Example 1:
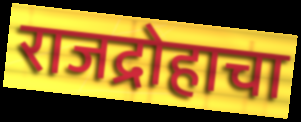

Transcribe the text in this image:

राजद्रोहाचा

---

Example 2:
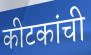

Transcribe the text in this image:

कीटकांची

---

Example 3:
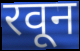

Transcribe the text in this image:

रवून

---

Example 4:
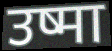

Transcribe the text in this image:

उष्मा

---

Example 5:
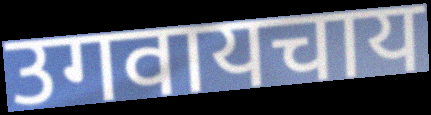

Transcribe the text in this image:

उगवायचाय